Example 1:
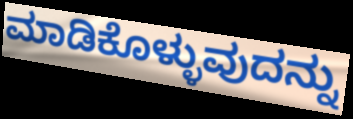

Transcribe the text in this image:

ಮಾಡಿಕೊಳ್ಳುವುದನ್ನು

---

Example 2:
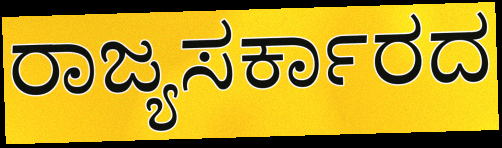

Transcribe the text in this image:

ರಾಜ್ಯಸರ್ಕಾರದ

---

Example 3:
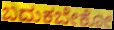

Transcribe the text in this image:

ಬದುಕಬೇಕೋ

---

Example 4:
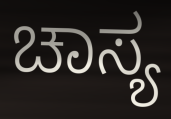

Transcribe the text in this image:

ಚಾಸ್ಯ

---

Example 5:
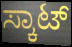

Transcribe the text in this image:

ಸ್ಕಾಟ್